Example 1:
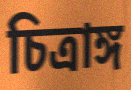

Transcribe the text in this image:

চিত্রাঙ্গ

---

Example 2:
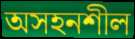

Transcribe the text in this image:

অসহনশীল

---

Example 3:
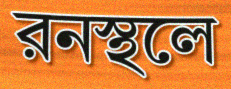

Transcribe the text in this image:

রনস্থলে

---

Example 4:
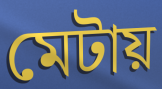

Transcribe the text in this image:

মেটায়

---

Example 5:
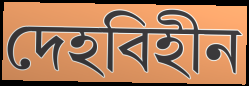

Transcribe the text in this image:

দেহবিহীন